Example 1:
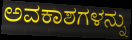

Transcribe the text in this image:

ಅವಕಾಶಗಳನ್ನು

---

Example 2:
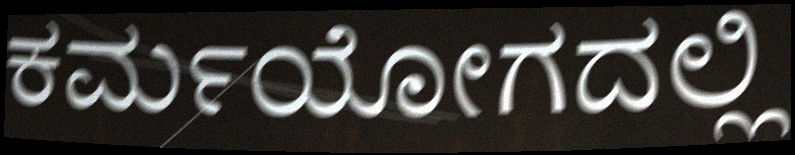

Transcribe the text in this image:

ಕರ್ಮಯೋಗದಲ್ಲಿ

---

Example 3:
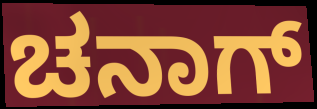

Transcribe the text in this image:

ಚನಾಗ್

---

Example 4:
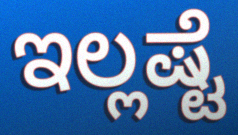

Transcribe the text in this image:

ಇಲ್ಲಷ್ಟೆ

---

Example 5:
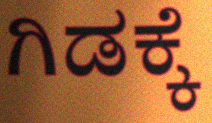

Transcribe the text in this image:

ಗಿಡಕ್ಕೆ